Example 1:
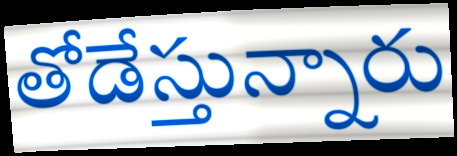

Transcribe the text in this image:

తోడేస్తున్నారు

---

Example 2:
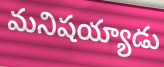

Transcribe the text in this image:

మనిషయ్యాడు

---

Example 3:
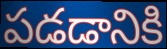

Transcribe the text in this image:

పడడానికి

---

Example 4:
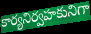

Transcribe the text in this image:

కార్యనిర్వహకునిగా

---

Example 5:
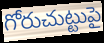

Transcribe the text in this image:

గోరుచుట్టుపై